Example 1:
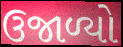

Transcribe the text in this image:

ઉજાળ્યો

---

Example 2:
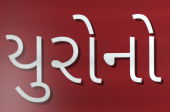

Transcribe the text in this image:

યુરોનો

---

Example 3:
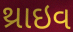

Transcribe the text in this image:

થ્રાઇવ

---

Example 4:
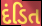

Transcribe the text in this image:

દંડિત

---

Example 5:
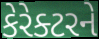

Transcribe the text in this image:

કેરેક્ટરને